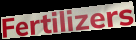
Fertilizers